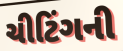
ચીટિંગની